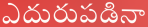
ఎదురుపడినా